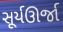
સૂર્યઊર્જા